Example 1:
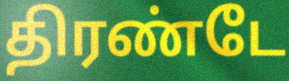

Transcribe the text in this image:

திரண்டே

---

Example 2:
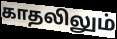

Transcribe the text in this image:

காதலிலும்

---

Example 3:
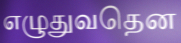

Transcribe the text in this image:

எழுதுவதென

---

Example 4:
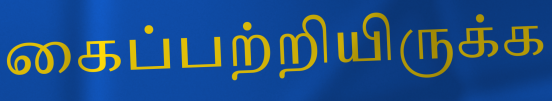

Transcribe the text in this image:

கைப்பற்றியிருக்க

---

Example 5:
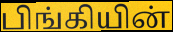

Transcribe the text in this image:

பிங்கியின்